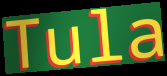
Tula